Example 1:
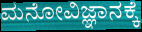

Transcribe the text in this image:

ಮನೋವಿಜ್ಞಾನಕ್ಕೆ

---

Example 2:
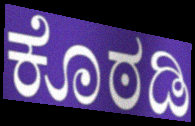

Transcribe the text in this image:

ಕೊಠಡಿ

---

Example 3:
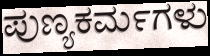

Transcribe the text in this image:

ಪುಣ್ಯಕರ್ಮಗಳು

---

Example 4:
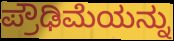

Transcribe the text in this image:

ಪ್ರೌಢಿಮೆಯನ್ನು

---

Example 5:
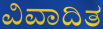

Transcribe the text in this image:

ವಿವಾದಿತ